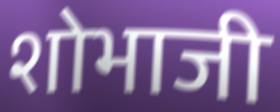
शोभाजी